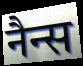
नैन्स